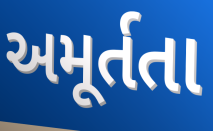
અમૂર્તતા